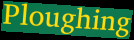
Ploughing